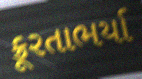
ક્રૂરતાભર્યા